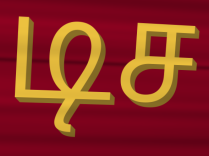
டிச